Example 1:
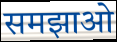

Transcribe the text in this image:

समझाओ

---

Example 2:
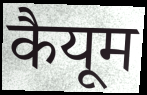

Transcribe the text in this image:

कैयूम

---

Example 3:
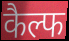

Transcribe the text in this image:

कैल्फ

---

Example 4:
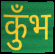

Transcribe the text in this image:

कुँभ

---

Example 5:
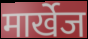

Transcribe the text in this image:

मार्खेज